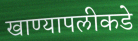
खाण्यापलीकडे